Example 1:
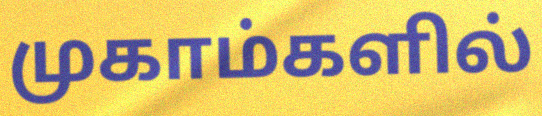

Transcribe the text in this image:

முகாம்களில்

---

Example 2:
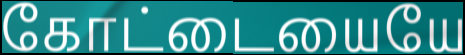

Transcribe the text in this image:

கோட்டையையே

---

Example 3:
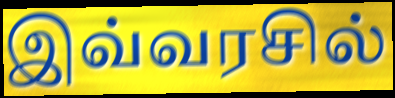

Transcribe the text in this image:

இவ்வரசில்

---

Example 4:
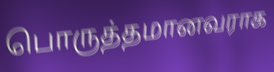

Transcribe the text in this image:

பொருத்தமானவராக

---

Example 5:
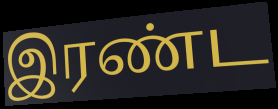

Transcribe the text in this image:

இரண்ட